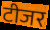
टीजर